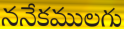
ననేకములగు